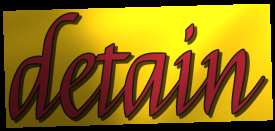
detain